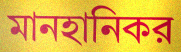
মানহানিকর